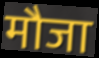
मौजा